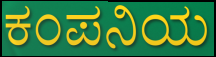
ಕಂಪನಿಯ